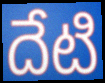
దేటి